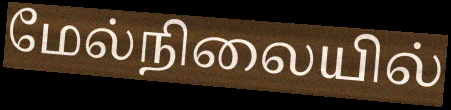
மேல்நிலையில்